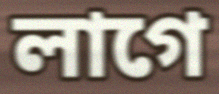
লাগে